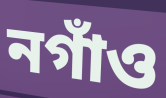
নগাঁও